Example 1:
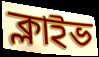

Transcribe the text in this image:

ক্লাইভ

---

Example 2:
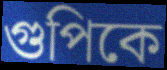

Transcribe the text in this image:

গুপিকে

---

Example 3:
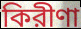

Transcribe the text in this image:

কিরীণা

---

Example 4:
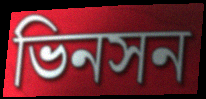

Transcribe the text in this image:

ভিনসন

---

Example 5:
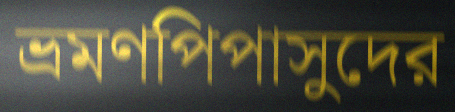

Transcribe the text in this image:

ভ্রমণপিপাসুদের